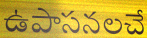
ఉపాసనలచే